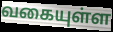
வகையுள்ள